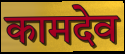
कामदेव